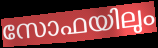
സോഫയിലും